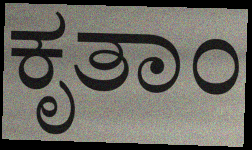
ಕೃತಾಂ